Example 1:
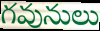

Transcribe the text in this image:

గవునులు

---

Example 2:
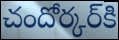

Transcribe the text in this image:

చందోర్కర్‌కి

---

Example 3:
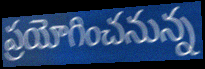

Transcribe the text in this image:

ప్రయోగించనున్న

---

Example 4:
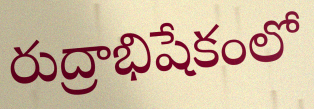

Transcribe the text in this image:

రుద్రాభిషేకంలో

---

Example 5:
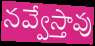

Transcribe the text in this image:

నవ్వేస్తావు